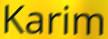
Karim